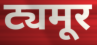
ट्यमूर